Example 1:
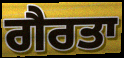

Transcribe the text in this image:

ਗੈਰਤਾ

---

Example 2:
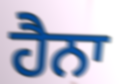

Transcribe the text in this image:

ਹੈਨਾ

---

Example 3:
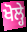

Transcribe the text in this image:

ਖੋਲ੍ਹੇ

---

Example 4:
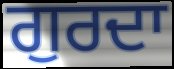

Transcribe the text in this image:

ਗੁਰਦਾ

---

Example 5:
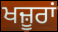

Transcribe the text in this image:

ਖਜ਼ੂਰਾਂ